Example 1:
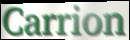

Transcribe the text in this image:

Carrion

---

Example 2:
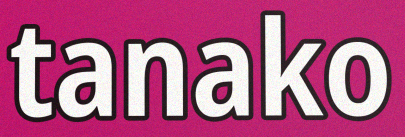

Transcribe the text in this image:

tanako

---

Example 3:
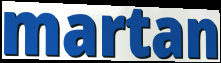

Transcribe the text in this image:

martan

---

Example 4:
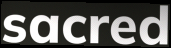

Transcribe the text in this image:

sacred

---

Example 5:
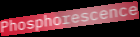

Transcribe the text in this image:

Phosphorescence